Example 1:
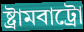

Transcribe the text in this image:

ষ্ট্ৰামবাট্ৰো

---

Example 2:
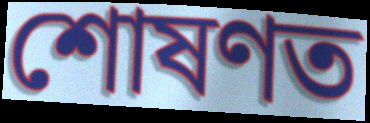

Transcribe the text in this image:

শোষণত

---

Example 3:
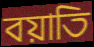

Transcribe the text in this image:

বয়াতি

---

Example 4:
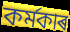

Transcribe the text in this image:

কৰ্মকাৰ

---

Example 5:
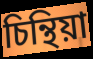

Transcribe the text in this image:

চিন্থিয়া